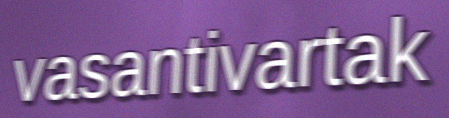
vasantivartak